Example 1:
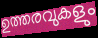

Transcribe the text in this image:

ഉത്തരവുകളും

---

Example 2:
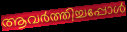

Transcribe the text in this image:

ആവർത്തിച്ചപ്പോൾ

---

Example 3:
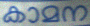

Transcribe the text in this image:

കാമന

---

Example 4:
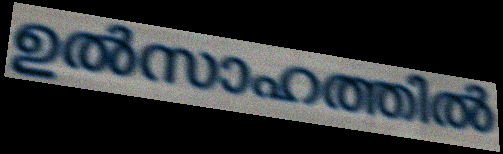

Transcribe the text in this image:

ഉൽസാഹത്തിൽ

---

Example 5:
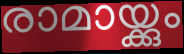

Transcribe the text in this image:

രാമായ്ക്കും